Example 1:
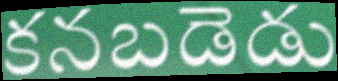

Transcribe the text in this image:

కనబడెడు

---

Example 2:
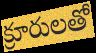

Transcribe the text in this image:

క్రూరులతో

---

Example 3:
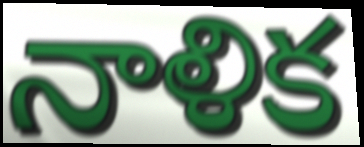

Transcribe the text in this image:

నాళిక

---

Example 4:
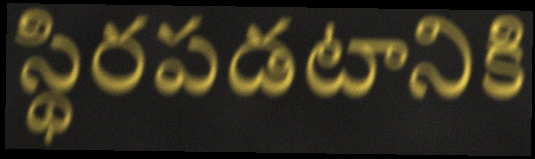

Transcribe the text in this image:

స్థిరపడటానికి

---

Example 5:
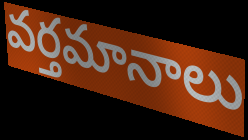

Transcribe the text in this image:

వర్తమానాలు